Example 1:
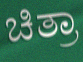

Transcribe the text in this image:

ಚಿತ್ರಾ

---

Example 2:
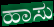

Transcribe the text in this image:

ಹಾಸು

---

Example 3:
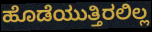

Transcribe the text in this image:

ಹೊಡೆಯುತ್ತಿರಲಿಲ್ಲ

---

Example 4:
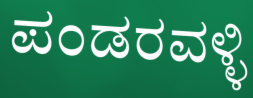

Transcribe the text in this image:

ಪಂಡರವಳ್ಳಿ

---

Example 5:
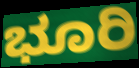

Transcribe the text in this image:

ಭೂರಿ